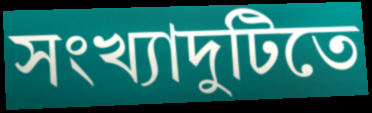
সংখ্যাদুটিতে